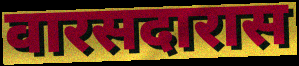
वारसदारास